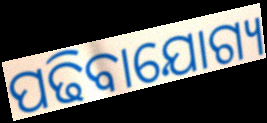
ପଢିବାଯୋଗ୍ୟ